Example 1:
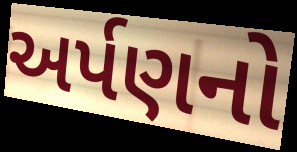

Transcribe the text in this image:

અર્પણનો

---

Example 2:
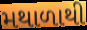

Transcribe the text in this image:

મથાળાથી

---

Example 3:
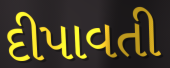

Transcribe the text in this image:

દીપાવતી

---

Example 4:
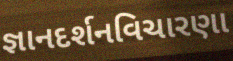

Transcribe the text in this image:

જ્ઞાનદર્શનવિચારણા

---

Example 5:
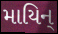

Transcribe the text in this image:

માયિન્